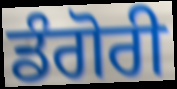
ਡੰਗੋਰੀ